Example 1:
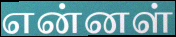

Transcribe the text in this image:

என்னள்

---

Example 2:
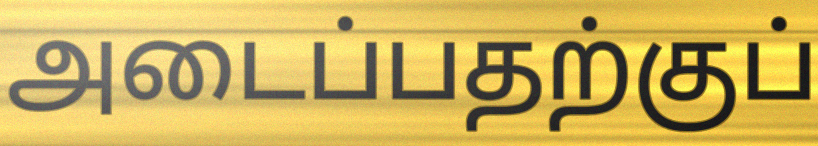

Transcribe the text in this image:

அடைப்பதற்குப்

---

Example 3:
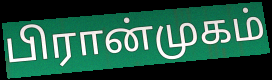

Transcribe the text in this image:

பிரான்முகம்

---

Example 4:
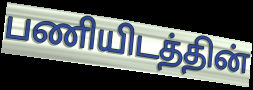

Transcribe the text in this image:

பணியிடத்தின்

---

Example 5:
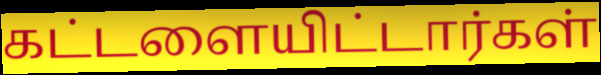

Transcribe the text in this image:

கட்டளையிட்டார்கள்